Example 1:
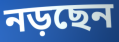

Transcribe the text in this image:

নড়ছেন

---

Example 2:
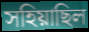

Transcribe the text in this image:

সহিয়াছিল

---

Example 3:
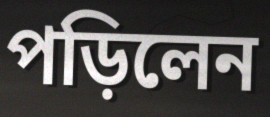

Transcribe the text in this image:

পড়িলেন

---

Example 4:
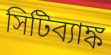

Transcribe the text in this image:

সিটিব্যাঙ্ক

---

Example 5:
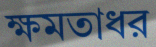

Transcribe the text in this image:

ক্ষমতাধর